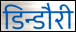
डिन्डौरी